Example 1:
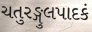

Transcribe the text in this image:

ચતુરઙ્ગુલપાદકં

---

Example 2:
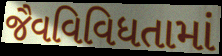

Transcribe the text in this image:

જૈવવિવિધતામાં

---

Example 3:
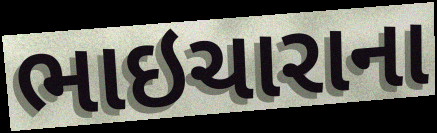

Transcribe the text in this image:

ભાઇચારાના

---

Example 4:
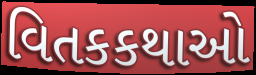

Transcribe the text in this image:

વિતકકથાઓ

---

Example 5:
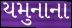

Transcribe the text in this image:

યમુનાના